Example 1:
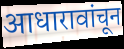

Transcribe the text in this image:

आधारावांचून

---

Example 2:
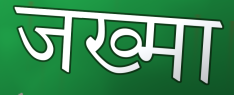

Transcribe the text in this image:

जख्मा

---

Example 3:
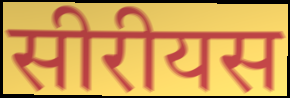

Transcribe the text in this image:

सीरीयस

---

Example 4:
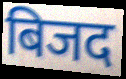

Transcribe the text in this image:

बिजद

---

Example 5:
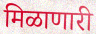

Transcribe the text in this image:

मिळाणारी